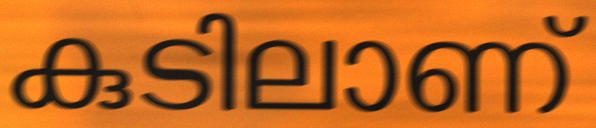
കുടിലാണ്